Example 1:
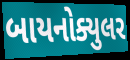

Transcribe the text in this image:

બાયનોક્યુલર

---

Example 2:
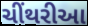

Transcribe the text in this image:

ચીંથરીઆ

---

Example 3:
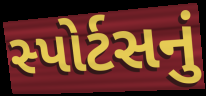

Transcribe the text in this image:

સ્પોર્ટસનું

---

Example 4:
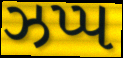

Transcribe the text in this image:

ઝપ્પ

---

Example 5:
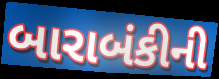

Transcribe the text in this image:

બારાબંકીની